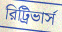
রিট্রিভার্স